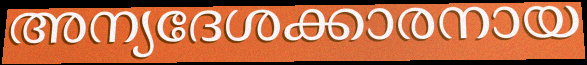
അന്യദേശക്കാരനായ